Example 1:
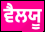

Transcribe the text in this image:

ਵੈਲਯੂ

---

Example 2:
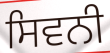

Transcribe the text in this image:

ਸਿਵਨੀ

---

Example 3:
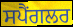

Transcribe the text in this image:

ਸਪੈਂਗਲਰ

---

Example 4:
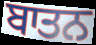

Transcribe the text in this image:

ਬਾਤਨ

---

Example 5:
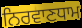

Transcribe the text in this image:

ਨਿਰਵਾਣਧਾਮ